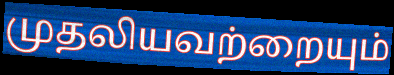
முதலியவற்றையும்